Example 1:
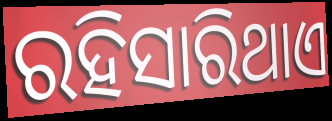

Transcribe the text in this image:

ରହିସାରିଥାଏ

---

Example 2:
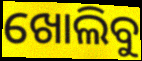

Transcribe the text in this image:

ଖୋଲିବୁ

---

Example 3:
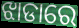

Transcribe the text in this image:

ଝାଡାରେ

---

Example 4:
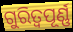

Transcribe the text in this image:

ଗୁରିତ୍ୱପୂର୍ଣ୍ଣ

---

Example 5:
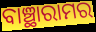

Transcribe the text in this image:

ବାଞ୍ଛାରାମର